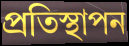
প্ৰতিস্থাপন